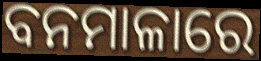
ବନମାଳାରେ